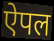
ऐपल